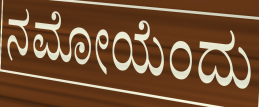
ನಮೋಯೆಂದು